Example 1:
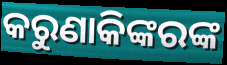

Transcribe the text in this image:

କରୁଣାକିଙ୍କରଙ୍କ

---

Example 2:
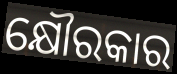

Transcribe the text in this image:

କ୍ଷୌରକାର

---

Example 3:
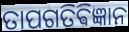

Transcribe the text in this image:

ତାପଗତିଵିଜ୍ଞାନ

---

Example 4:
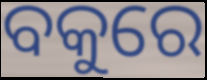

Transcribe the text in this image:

ବକୁରେ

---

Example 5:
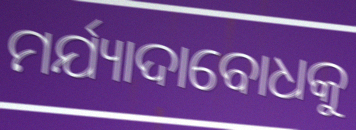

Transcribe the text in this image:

ମର୍ଯ୍ୟାଦାବୋଧକୁ